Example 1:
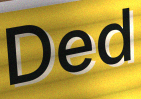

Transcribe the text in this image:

Ded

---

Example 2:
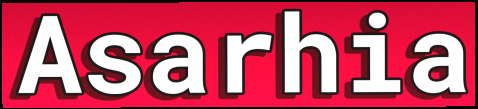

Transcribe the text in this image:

Asarhia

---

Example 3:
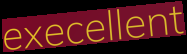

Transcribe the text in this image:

execellent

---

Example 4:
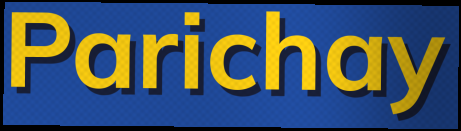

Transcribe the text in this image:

Parichay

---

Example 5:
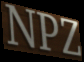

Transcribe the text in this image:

NPZ